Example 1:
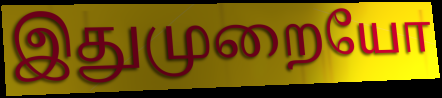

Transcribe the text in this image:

இதுமுறையோ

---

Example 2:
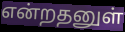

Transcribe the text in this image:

என்றதனுள்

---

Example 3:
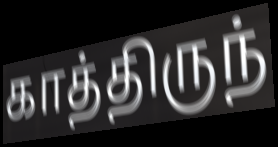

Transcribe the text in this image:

காத்திருந்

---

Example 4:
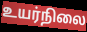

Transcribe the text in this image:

உயர்நிலை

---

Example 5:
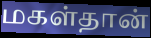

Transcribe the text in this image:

மகள்தான்